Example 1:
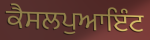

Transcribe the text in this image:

ਕੈਸਲਪੁਆਇੰਟ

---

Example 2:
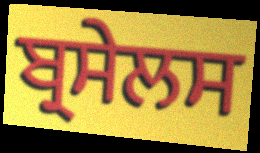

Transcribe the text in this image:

ਬ੍ਰਸੇਲਸ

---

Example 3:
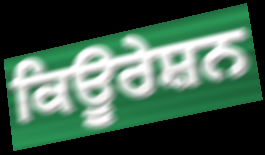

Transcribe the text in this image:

ਕਿਊਰੇਸ਼ਨ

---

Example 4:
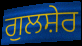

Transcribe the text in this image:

ਗੁਲਸ਼ੇਰ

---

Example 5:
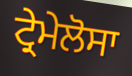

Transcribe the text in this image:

ਟ੍ਰੇਮੇਲੋਸਾ